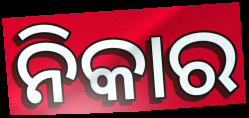
ନିକାର